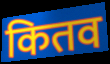
कितव